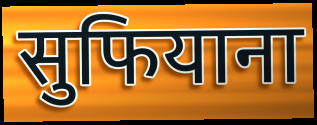
सुफियाना